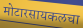
मोटारसायकलचा